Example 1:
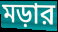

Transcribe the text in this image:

মড়ার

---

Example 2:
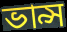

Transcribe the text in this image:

ভান্স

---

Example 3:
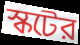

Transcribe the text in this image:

স্কটের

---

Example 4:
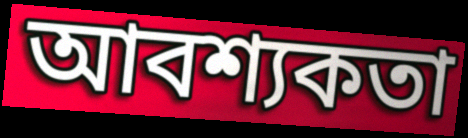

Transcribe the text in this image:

আবশ্যকতা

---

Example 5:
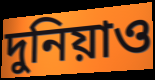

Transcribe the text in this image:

দুনিয়াও